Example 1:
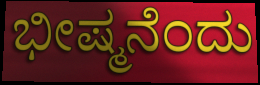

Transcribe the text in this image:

ಭೀಷ್ಮನೆಂದು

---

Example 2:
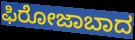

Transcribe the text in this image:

ಫಿರೋಜಾಬಾದ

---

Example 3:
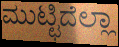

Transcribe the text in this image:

ಮುಟ್ಟಿದೆಲ್ಲಾ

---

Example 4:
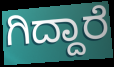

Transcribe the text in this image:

ಗಿದ್ದಾರೆ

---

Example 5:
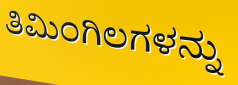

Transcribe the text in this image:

ತಿಮಿಂಗಿಲಗಳನ್ನು